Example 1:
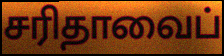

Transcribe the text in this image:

சரிதாவைப்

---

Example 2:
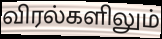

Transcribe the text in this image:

விரல்களிலும்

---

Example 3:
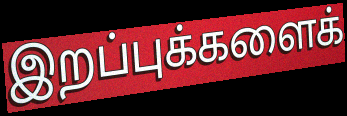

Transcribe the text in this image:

இறப்புக்களைக்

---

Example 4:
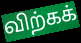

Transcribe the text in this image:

விற்கக்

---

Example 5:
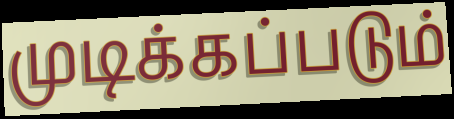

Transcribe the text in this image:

முடிக்கப்படும்